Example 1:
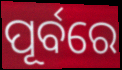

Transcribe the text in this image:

ପୂର୍ବରେ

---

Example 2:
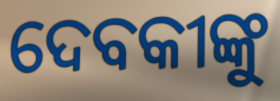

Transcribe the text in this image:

ଦେବକୀଙ୍କୁ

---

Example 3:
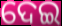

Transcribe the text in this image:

ଦେଇ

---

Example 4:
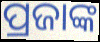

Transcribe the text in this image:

ପ୍ରଜାଙ୍କ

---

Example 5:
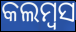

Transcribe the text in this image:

କଲମ୍ବସ